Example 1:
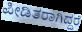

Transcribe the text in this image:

ಪೀಡಿತರಾಗಿದ್ದರೆ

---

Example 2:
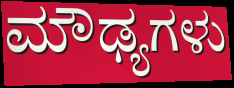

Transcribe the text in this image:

ಮೌಢ್ಯಗಳು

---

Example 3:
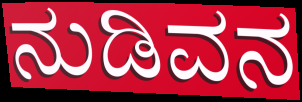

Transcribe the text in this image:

ನುಡಿವನ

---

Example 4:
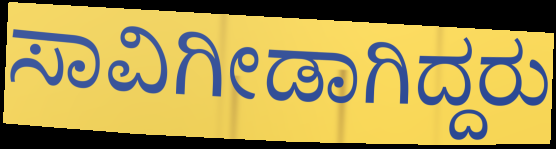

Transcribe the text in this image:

ಸಾವಿಗೀಡಾಗಿದ್ದರು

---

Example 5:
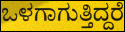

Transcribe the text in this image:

ಒಳಗಾಗುತ್ತಿದ್ದರೆ